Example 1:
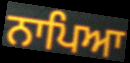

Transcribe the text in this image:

ਨਾਪਿਆ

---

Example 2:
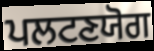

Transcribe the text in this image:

ਪਲਟਣਯੋਗ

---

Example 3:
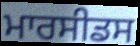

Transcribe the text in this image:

ਮਾਰਸੀਡਸ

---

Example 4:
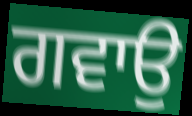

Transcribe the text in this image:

ਗਵਾਉ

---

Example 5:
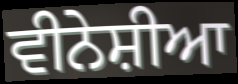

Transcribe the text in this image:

ਵੀਨੇਸ਼ੀਆ